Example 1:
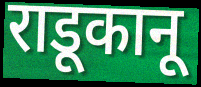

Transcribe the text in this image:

राडूकानू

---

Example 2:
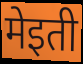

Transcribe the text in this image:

मेइती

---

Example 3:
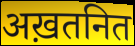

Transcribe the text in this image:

अख़तनित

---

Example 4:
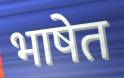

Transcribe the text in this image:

भाषेत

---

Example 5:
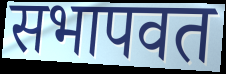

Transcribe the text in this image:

सभापवत